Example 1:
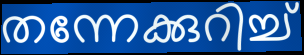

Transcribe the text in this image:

തന്നേക്കുറിച്ച്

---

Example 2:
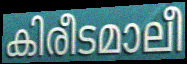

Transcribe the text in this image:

കിരീടമാലീ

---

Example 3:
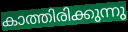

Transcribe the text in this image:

കാത്തിരിക്കുന്നു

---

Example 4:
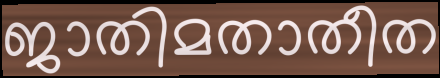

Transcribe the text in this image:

ജാതിമതാതീത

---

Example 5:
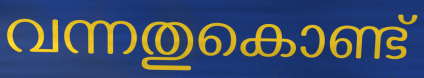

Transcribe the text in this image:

വന്നതുകൊണ്ട്